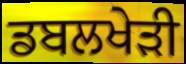
ਡਬਲਖੇੜੀ